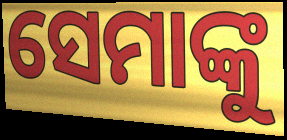
ସେମାଙ୍କୁ